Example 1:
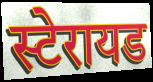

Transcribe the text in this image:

स्टेरायड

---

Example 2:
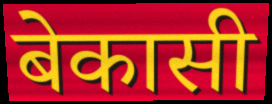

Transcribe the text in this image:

बेकासी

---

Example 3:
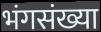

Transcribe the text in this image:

भंगसंख्या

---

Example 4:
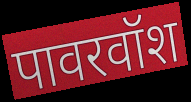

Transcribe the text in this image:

पावरवॉश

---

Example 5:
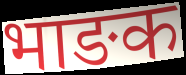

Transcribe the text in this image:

भाङक